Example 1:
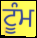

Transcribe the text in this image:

ਟੂੰਮ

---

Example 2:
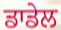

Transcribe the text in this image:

ਡਾਡੇਲ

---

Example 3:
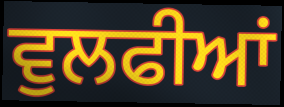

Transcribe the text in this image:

ਵੁਲਫੀਆਂ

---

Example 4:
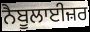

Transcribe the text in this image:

ਨੈਬੂਲਾਈਜ਼ਰ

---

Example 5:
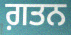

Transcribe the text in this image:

ਗ਼ਤਨ